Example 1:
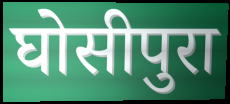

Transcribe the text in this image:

घोसीपुरा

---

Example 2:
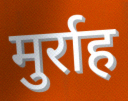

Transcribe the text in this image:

मुर्राह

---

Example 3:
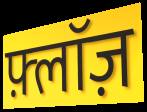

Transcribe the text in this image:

फ़्लॉज़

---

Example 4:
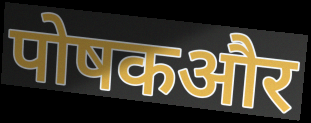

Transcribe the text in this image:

पोषकऔर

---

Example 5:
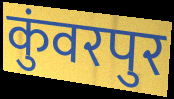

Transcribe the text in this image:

कुंवरपुर